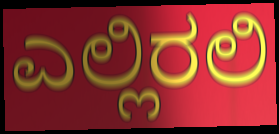
ಎಲ್ಲಿರಲಿ